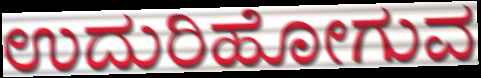
ಉದುರಿಹೋಗುವ